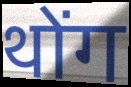
थोंग